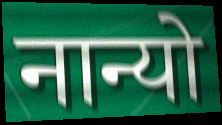
नान्यो